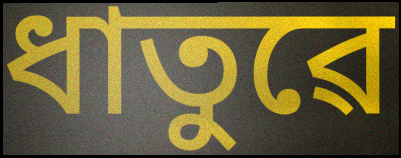
ধাতুৱে